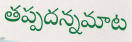
తప్పదన్నమాట